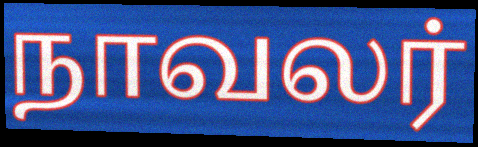
நாவலர்